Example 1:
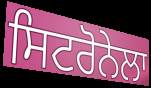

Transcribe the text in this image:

ਸਿਟਰੋਨੇਲਾ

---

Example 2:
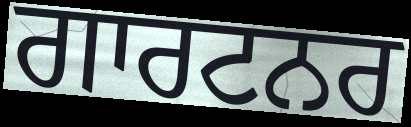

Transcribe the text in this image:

ਗਾਰਟਨਰ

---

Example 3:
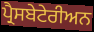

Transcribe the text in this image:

ਪ੍ਰੈਸਬੇਟੇਰੀਅਨ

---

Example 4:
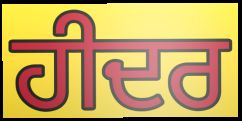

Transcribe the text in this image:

ਹੀਦਰ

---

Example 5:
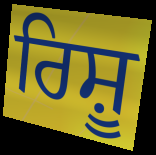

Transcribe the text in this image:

ਰਿਸ਼ੂ